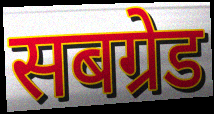
सबग्रेड